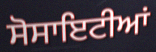
ਸੋਸਾਇਟੀਆਂ